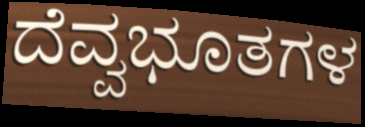
ದೆವ್ವಭೂತಗಳ